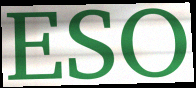
ESO